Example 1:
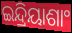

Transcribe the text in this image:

ଇନ୍ଦ୍ରିୟାଶାଂ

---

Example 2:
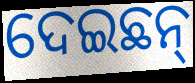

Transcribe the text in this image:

ଦେଇଛନ୍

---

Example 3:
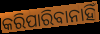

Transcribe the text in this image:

କରିପାରିବାନାହିଁ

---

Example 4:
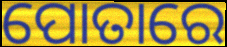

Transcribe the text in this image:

ପୋତାରେ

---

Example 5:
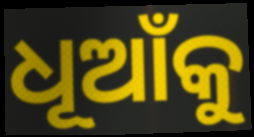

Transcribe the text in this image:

ଧୂଆଁକୁ